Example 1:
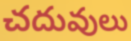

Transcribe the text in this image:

చదువులు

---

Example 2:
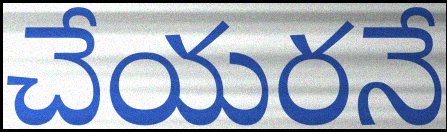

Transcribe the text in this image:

చేయరనే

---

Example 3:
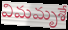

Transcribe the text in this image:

విమమృశే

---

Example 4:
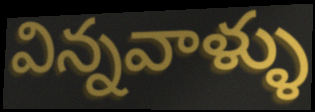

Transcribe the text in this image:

విన్నవాళ్ళు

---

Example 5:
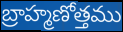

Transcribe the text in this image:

బ్రాహ్మణోత్తము